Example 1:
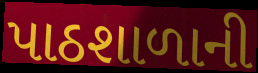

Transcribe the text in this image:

પાઠશાળાની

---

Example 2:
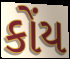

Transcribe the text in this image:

કોંય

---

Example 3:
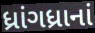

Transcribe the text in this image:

ધ્રાંગધ્રાનાં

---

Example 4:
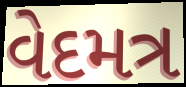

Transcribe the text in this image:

વેદમત્ર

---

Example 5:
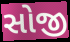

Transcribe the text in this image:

સોજી